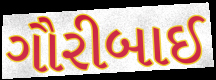
ગૌરીબાઈ